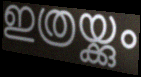
ഇത്രയ്ക്കും